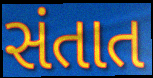
સંતાત